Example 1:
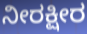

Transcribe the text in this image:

ನೀರಕ್ಷೀರ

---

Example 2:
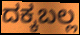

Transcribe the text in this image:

ದಕ್ಕಬಲ್ಲ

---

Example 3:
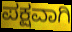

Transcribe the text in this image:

ಪಕ್ಷವಾಗಿ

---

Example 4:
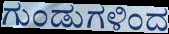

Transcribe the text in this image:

ಗುಂಡುಗಳಿಂದ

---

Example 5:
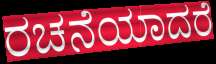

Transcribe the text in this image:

ರಚನೆಯಾದರೆ